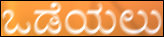
ಒಡೆಯಲು